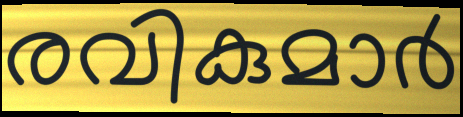
രവികുമാർ